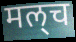
मल्च